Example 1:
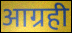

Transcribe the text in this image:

आग्रही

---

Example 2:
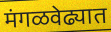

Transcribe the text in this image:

मंगळवेढ्यात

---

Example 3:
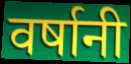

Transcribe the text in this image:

वर्षानी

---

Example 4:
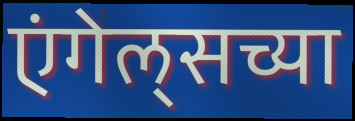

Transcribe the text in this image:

एंगेल्सच्या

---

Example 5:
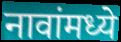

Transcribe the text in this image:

नावांमध्ये